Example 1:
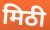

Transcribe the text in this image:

मिठी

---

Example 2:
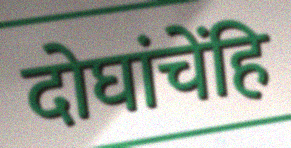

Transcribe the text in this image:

दोघांचेंहि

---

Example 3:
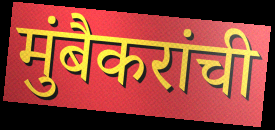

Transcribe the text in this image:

मुंबैकरांची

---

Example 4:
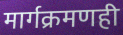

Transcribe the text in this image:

मार्गक्रमणही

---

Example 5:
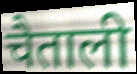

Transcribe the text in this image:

चैताली